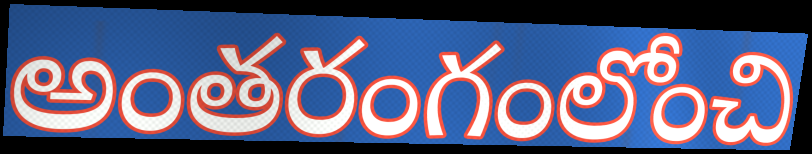
అంతరంగంలోంచి